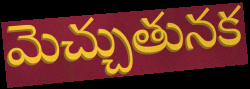
మెచ్చుతునక